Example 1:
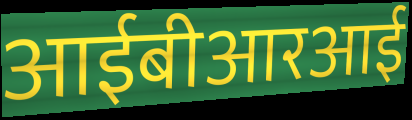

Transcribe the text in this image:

आईबीआरआई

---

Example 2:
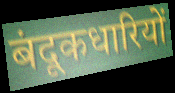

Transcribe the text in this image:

बंदूकधारियों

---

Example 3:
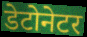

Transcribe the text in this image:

डेटोनेटर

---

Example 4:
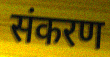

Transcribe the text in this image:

संकरण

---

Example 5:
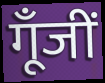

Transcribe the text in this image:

गूँजीं